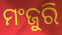
ମଂଜୁରି